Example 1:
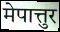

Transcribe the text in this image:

मेपात्तुर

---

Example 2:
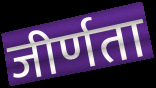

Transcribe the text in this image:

जीर्णता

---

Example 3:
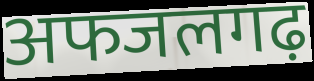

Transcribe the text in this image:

अफजलगढ़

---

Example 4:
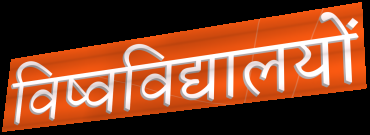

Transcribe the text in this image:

विष्वविद्यालयों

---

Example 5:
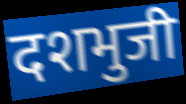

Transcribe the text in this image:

दशभुजी